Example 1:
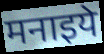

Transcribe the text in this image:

मनाइये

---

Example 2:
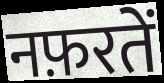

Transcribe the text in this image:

नफ़रतें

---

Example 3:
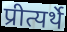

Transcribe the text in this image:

प्रीत्यर्थे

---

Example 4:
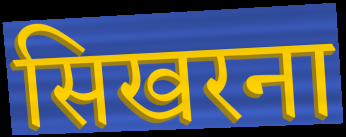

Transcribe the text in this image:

सिखरना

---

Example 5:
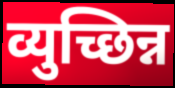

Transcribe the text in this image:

व्युच्छिन्न